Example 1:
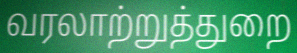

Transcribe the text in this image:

வரலாற்றுத்துறை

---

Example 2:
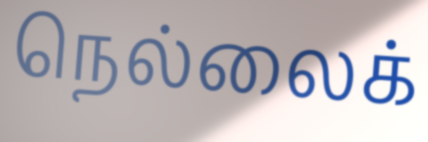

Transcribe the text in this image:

நெல்லைக்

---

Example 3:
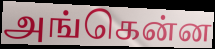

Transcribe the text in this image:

அங்கென்ன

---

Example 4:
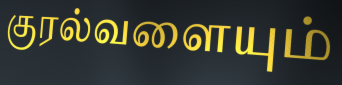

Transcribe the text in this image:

குரல்வளையும்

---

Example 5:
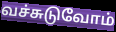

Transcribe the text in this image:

வச்சுடுவோம்